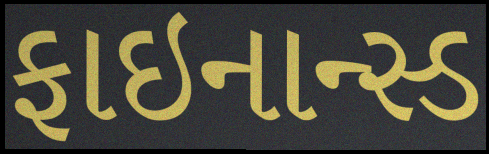
ફાઇનાન્સ્ડ